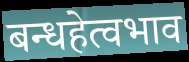
बन्धहेत्वभाव